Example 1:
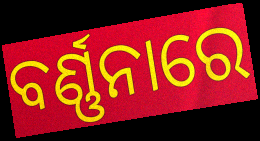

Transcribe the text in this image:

ବର୍ଣ୍ଣନାରେ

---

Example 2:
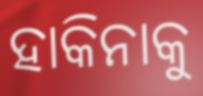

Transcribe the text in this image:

ହାକିନାକୁ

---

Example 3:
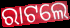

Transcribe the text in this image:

ରାଟଲେ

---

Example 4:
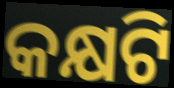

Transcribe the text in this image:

କକ୍ଷଟି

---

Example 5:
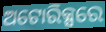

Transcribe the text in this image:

ଅଟୋରିକ୍ସରେ